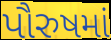
પૌરુષમાં